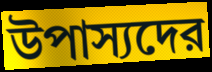
উপাস্যদের